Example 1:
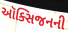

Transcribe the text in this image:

ઑક્સિજનની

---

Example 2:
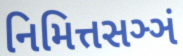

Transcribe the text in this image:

નિમિત્તસઞ્ઞં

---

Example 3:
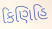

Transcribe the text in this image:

કિણિહિ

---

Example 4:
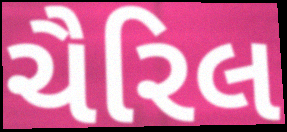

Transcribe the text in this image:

ચૈરિલ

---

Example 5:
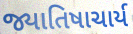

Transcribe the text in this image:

જ્યાતિષાચાર્ય